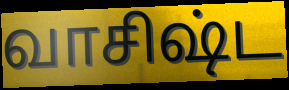
வாசிஷ்ட